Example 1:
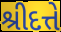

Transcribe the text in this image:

શ્રીદત્તે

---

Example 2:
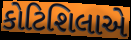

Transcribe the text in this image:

કોટિશિલાએ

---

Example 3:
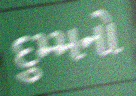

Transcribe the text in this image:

દુમ્મનો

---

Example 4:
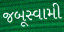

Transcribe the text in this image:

જબૂસ્વામી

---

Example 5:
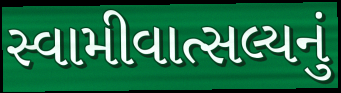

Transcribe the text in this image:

સ્વામીવાત્સલ્યનું